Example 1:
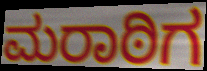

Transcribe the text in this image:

ಮರಾಠಿಗ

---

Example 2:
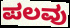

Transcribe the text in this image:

ಪಲವು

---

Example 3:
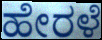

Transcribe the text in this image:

ಹೇರಳೆ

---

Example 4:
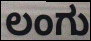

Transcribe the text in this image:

ಲಂಗು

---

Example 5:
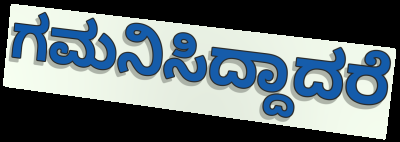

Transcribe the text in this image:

ಗಮನಿಸಿದ್ದಾದರೆ